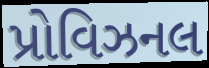
પ્રોવિઝનલ